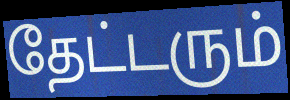
தேட்டரும்